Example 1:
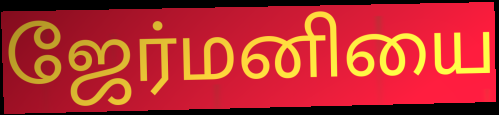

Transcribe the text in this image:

ஜேர்மனியை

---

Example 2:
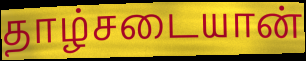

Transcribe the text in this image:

தாழ்சடையான்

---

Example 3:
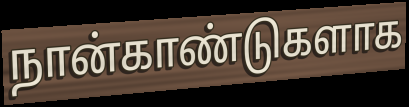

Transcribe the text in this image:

நான்காண்டுகளாக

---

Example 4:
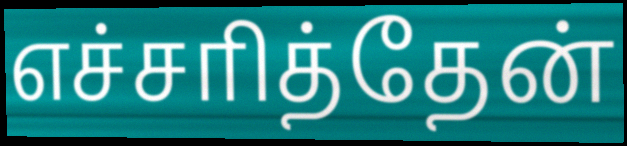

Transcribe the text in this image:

எச்சரித்தேன்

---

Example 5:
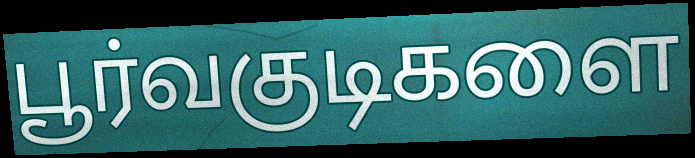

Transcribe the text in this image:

பூர்வகுடிகளை